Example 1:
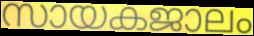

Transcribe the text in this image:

സായകജാലം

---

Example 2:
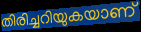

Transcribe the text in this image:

തിരിച്ചറിയുകയാണ്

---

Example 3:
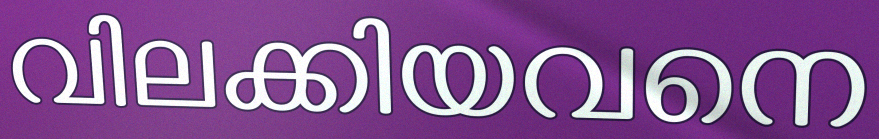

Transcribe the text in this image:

വിലക്കിയവനെ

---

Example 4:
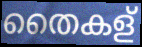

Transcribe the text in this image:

തൈകള്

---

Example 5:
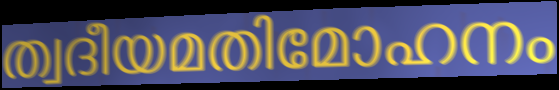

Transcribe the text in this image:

ത്വദീയമതിമോഹനം